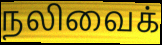
நலிவைக்